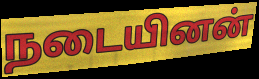
நடையினன்